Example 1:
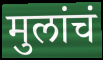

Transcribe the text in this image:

मुलांचं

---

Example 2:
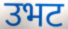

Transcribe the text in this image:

उभट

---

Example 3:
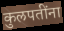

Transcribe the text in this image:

कुलपतींना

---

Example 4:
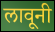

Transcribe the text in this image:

लावूनी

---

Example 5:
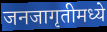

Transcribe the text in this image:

जनजागृतीमध्ये